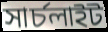
সার্চলাইট